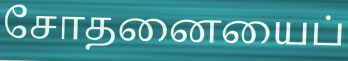
சோதனையைப்